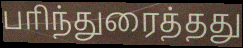
பரிந்துரைத்தது